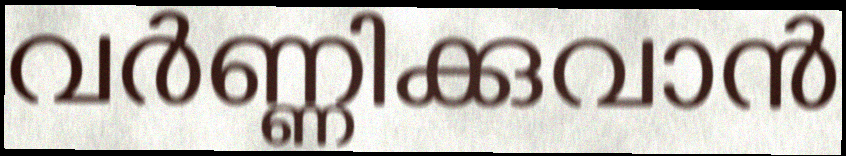
വർണ്ണിക്കുവാൻ